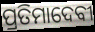
ପ୍ରତିମାଦେବୀ